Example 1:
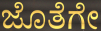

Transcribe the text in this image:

ಜೊತೆಗೇ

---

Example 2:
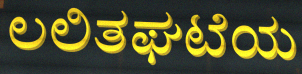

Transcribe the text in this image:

ಲಲಿತಘಟೆಯ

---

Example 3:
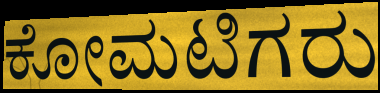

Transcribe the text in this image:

ಕೋಮಟಿಗರು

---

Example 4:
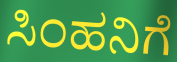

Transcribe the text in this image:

ಸಿಂಹನಿಗೆ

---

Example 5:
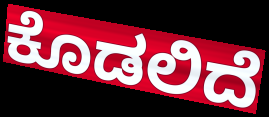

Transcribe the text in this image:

ಕೊಡಲಿದೆ